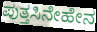
ಪುತ್ತಸಿನೇಹೇನ